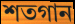
শতগান